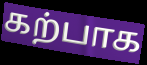
கற்பாக